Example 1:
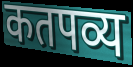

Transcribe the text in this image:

कतपव्य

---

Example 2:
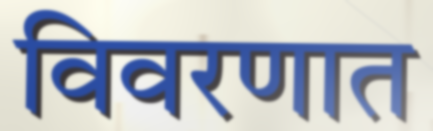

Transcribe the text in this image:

विवरणात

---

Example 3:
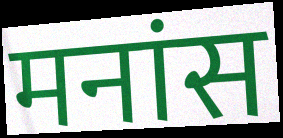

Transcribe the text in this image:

मनांस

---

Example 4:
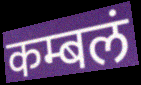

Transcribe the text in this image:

कम्बलं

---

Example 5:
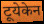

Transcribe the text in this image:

टूयेकेन